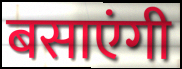
बसाएंगी